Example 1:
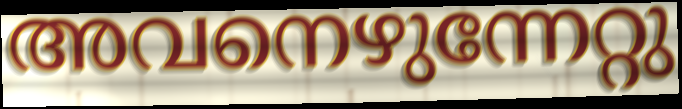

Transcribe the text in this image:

അവനെഴുന്നേറ്റു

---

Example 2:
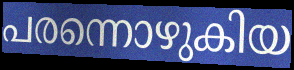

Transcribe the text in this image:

പരന്നൊഴുകിയ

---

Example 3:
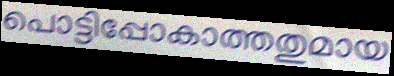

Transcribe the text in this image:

പൊട്ടിപ്പോകാത്തതുമായ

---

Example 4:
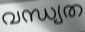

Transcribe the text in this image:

വന്ധ്യത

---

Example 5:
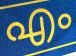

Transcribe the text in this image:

എം